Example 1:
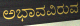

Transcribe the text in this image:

ಅಭಾವವಿರುವ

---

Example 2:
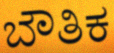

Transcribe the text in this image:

ಬೌತಿಕ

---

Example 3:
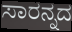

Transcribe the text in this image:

ಸಾರನ್ನದ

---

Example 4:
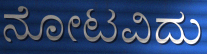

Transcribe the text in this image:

ನೋಟವಿದು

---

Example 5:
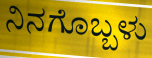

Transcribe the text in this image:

ನಿನಗೊಬ್ಬಳು